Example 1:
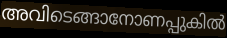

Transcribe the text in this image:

അവിടെങ്ങാനോണപ്പുകിൽ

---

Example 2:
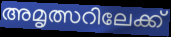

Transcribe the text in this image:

അമൃത്സറിലേക്ക്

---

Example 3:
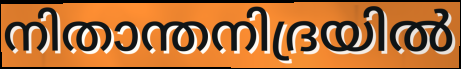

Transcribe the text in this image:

നിതാന്തനിദ്രയിൽ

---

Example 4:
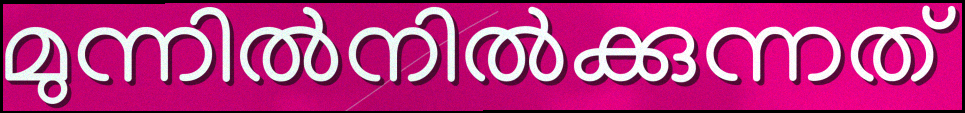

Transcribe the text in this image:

മുന്നിൽനിൽക്കുന്നത്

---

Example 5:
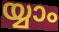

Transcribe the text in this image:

യ്യാം